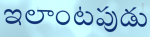
ఇలాంటపుడు